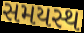
સમયસ્થ